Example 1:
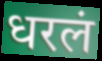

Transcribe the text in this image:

धरलं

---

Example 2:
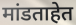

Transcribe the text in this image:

मांडताहेत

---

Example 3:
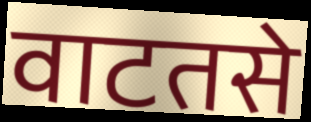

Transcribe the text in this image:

वाटतसे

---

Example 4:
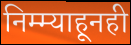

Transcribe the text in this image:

निम्म्याहूनही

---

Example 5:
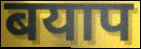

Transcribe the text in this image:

बयाप